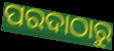
ପରଦାଠାରୁ